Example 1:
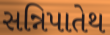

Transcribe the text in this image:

સન્નિપાતેથ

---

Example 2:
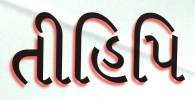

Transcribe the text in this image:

તીહિપિ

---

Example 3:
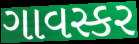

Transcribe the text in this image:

ગાવસ્કર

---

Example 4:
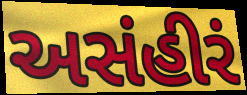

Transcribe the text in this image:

અસંહીરં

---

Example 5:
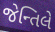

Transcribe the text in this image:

જેન્તિલે